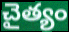
చైత్యం